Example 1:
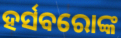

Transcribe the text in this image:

ହର୍ସବରୋଙ୍କ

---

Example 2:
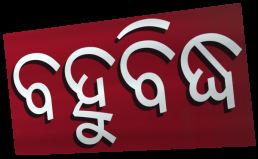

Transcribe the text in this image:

ବହୁବିଦ୍ଧ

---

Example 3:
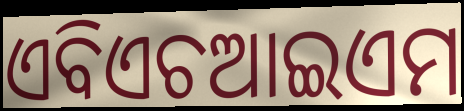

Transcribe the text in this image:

ଏବିଏଚଆଇଏମ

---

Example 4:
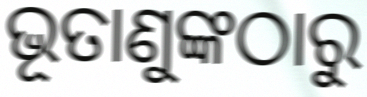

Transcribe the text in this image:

ଭୂତାଣୁଙ୍କଠାରୁ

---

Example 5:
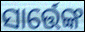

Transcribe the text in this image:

ସାର୍ତ୍ତେଙ୍କ